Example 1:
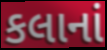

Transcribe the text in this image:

કલાનાં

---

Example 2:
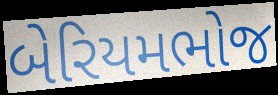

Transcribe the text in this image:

બેરિયમભોજ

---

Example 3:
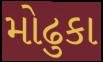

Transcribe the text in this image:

મોઢુકા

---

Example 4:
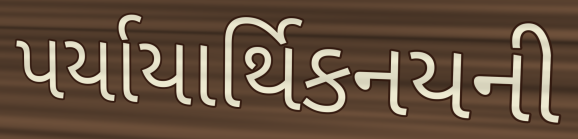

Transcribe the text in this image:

પર્યાયાર્થિકનયની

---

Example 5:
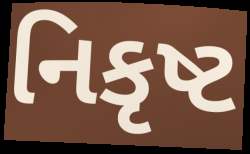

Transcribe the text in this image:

નિકૃષ્ટ